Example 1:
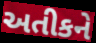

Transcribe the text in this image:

અતીકને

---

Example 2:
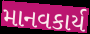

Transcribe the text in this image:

માનવકાર્ય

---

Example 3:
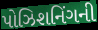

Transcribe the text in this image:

પોઝિશનિંગની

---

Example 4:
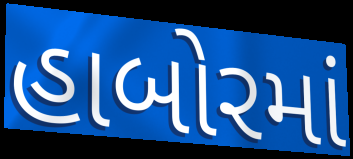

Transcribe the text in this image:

હાબોરમાં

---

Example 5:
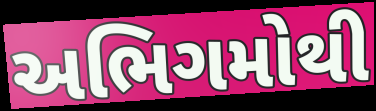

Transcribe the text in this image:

અભિગમોથી